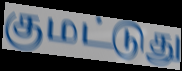
குமட்டுது